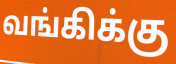
வங்கிக்கு